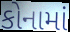
કોનામાં